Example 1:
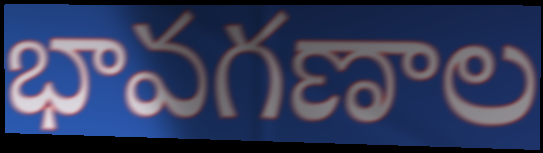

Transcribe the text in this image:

భావగణాల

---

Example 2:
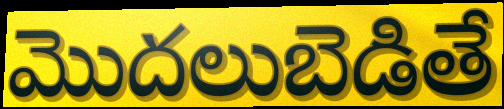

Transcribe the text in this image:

మొదలుబెడితే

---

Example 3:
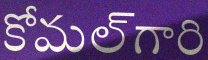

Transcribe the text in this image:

కోమల్‌గారి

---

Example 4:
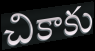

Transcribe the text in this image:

చికాకు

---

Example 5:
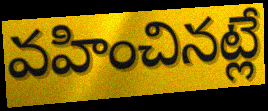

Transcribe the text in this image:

వహించినట్లే